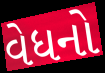
વેધનો